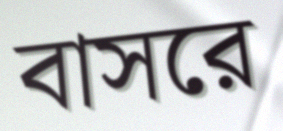
বাসরে